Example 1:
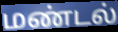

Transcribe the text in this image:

மண்டல்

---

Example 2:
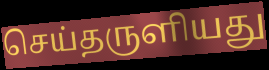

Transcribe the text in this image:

செய்தருளியது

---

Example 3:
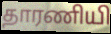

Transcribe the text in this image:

தாரணியி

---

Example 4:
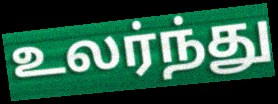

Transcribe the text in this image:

உலர்ந்து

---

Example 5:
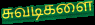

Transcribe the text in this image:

சுவடிகளை